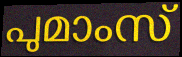
പുമാംസ്